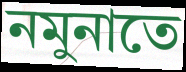
নমুনাতে